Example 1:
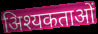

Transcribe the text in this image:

अिश्यकताओं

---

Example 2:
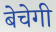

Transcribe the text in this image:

बेचेगी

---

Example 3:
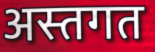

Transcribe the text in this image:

अस्तगत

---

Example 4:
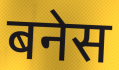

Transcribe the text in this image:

बनेस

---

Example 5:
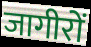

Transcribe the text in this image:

जागीरों